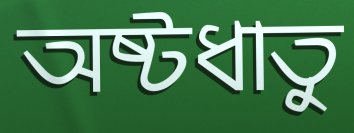
অষ্টধাতু